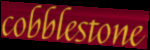
cobblestone